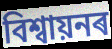
বিশ্বায়নৰ